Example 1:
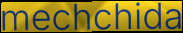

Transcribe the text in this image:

mechchida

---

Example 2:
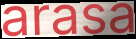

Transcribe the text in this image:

arasa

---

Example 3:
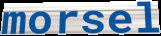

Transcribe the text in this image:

morsel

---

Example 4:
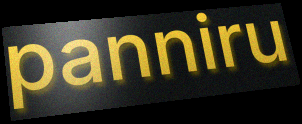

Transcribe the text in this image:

panniru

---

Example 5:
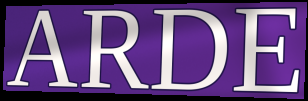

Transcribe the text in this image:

ARDE